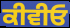
ਕੀਵੀਓ